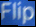
Flip